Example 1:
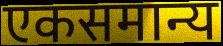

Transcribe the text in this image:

एकसमान्य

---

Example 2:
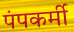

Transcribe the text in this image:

पंपकर्मी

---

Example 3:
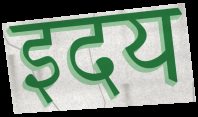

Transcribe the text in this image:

इदय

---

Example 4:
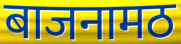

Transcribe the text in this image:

बाजनामठ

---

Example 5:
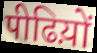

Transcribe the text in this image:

पीढिय़ों